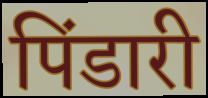
पिंडारी